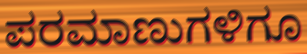
ಪರಮಾಣುಗಳಿಗೂ